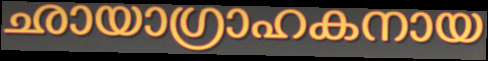
ഛായാഗ്രാഹകനായ